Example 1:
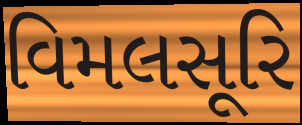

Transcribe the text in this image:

વિમલસૂરિ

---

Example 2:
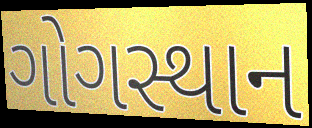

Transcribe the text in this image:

ગોગસ્થાન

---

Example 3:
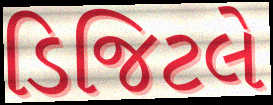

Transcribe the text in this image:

ડિજિટલે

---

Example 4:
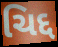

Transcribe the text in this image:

ચિદ્દ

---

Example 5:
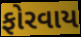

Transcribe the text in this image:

ફોરવાય